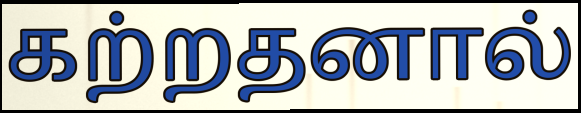
கற்றதனால்